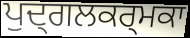
ਪੁਦ੍ਗਲਕਰ੍ਮਕਾ